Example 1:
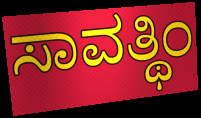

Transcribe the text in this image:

ಸಾವತ್ಥಿಂ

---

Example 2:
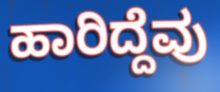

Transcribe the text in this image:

ಹಾರಿದ್ದೆವು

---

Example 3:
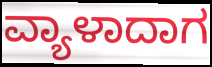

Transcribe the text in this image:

ವ್ಯಾಳಾದಾಗ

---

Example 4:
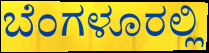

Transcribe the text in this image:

ಬೆಂಗಳೂರಲ್ಲಿ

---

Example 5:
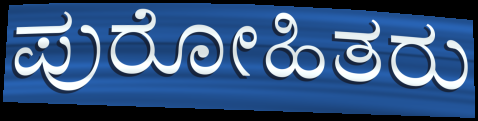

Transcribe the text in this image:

ಪುರೋಹಿತರು